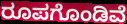
ರೂಪಗೊಂಡಿವೆ